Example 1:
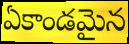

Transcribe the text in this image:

ఏకాండమైన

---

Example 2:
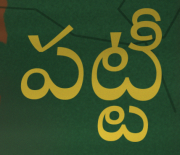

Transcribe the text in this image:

పట్టీ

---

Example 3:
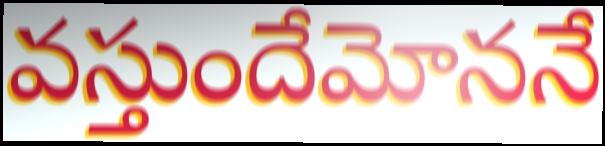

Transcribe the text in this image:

వస్తుందేమోననే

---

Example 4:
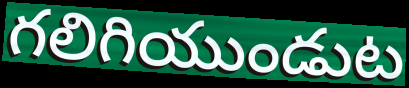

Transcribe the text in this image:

గలిగియుండుట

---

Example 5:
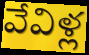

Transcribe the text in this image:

వేవిళ్ల